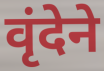
वृंदेने